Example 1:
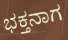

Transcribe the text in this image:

ಭಕ್ತನಾಗ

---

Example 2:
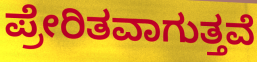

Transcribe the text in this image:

ಪ್ರೇರಿತವಾಗುತ್ತವೆ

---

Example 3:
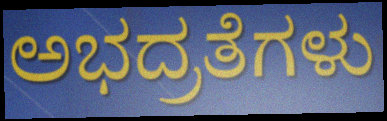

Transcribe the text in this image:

ಅಭದ್ರತೆಗಳು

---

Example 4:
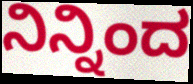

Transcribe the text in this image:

ನಿನ್ನಿಂದ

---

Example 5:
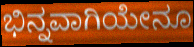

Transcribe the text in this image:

ಭಿನ್ನವಾಗಿಯೇನೂ